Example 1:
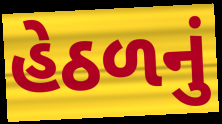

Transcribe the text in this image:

હેઠળનું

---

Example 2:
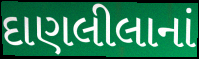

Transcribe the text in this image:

દાણલીલાનાં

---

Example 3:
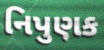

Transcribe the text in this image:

નિપુણક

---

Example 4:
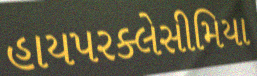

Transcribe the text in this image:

હાયપરક્લેસીમિયા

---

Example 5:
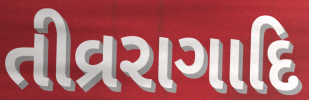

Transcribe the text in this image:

તીવ્રરાગાદિ